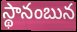
స్థానంబున